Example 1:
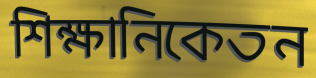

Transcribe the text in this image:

শিক্ষানিকেতন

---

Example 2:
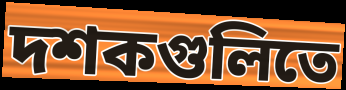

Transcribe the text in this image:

দশকগুলিতে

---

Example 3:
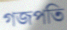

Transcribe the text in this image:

গজপতি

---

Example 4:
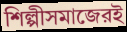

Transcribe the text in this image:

শিল্পীসমাজেরই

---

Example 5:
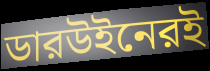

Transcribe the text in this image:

ডারউইনেরই